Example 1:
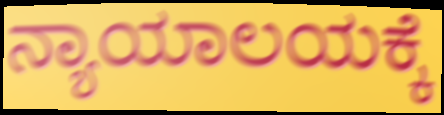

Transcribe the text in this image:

ನ್ಯಾಯಾಲಯಕ್ಕೆ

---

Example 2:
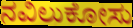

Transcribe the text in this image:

ನವಿಲುಕೋಸು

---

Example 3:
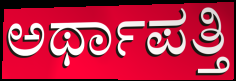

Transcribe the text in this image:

ಅರ್ಥಾಪತ್ತಿ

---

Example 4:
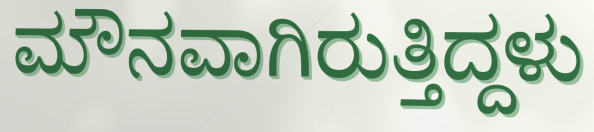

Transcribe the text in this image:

ಮೌನವಾಗಿರುತ್ತಿದ್ದಳು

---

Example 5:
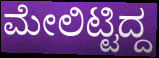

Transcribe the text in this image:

ಮೇಲಿಟ್ಟಿದ್ದ